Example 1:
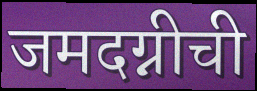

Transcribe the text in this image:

जमदग्नीची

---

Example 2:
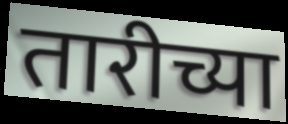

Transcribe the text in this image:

तारीच्या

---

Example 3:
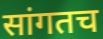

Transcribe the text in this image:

सांगतच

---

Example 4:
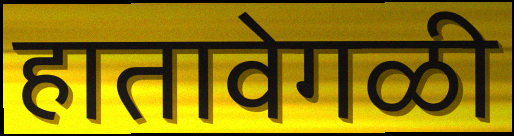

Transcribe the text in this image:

हातावेगळी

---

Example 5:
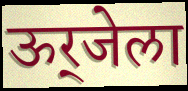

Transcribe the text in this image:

ऊर्जेला